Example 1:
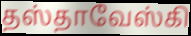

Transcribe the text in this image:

தஸ்தாவேஸ்கி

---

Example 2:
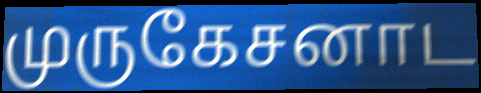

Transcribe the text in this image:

முருகேசனாட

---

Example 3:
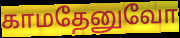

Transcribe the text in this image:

காமதேனுவோ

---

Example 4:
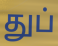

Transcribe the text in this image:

துப்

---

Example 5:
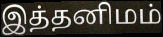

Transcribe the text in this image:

இத்தனிமம்